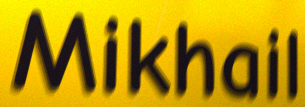
Mikhail